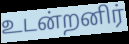
உடன்றனிர்